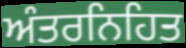
ਅੰਤਰਨਿਹਿਤ